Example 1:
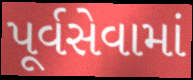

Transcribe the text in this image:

પૂર્વસેવામાં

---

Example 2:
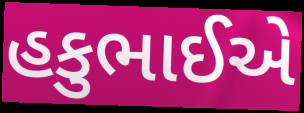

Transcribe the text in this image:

હકુભાઈએ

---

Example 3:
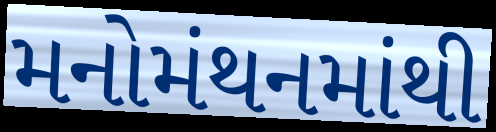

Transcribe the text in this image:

મનોમંથનમાંથી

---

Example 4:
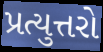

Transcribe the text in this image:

પ્રત્યુત્તરો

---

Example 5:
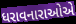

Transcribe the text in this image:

ધરાવનારાઓએ